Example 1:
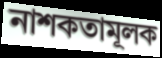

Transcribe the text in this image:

নাশকতামূলক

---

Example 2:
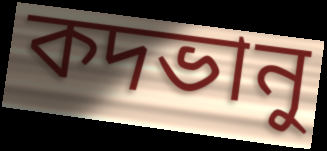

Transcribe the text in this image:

কদভানু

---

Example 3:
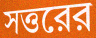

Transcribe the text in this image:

সত্তরের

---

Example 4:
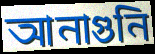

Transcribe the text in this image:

আনাগুনি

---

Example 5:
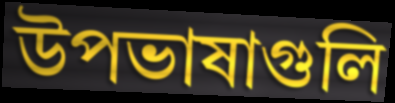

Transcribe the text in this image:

উপভাষাগুলি